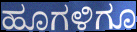
ಹೂಗಳಿಗೂ